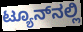
ಟ್ಯೂನ್‌ನಲ್ಲಿ